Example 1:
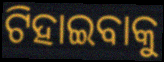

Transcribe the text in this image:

ଟିହାଇବାକୁ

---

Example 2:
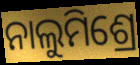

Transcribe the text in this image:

ନାଲୁମିଶ୍ରେ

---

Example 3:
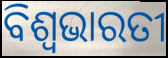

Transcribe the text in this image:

ବିଶ୍ୱଭାରତୀ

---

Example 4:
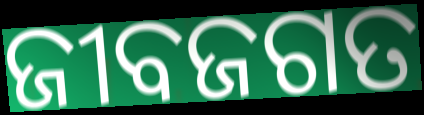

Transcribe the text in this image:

ଜୀବଜଗତ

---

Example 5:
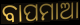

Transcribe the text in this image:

ବାପମାଆ